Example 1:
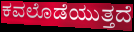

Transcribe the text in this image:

ಕವಲೊಡೆಯುತ್ತದೆ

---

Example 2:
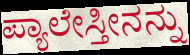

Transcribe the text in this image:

ಪ್ಯಾಲೇಸ್ತೀನನ್ನು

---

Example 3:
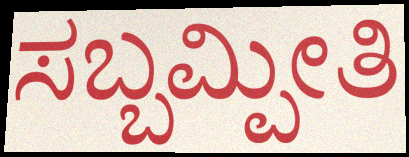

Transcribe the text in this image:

ಸಬ್ಬಮ್ಪೀತಿ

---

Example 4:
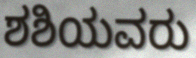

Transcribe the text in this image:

ಶಶಿಯವರು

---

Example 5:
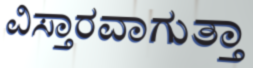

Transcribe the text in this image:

ವಿಸ್ತಾರವಾಗುತ್ತಾ